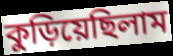
কুড়িয়েছিলাম